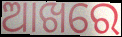
ଆଖରେ